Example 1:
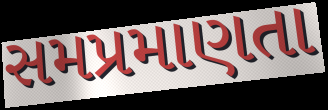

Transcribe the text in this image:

સમપ્રમાણતા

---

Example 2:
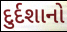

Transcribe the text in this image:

દુર્દશાનો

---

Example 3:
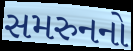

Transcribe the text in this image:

સમરુનનો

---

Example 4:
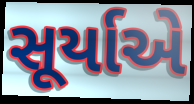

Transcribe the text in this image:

સૂર્યાએ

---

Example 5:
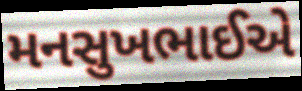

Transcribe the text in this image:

મનસુખભાઈએ